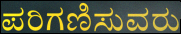
ಪರಿಗಣಿಸುವರು